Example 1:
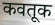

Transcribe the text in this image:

कवतूक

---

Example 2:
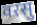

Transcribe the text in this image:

वरसु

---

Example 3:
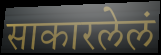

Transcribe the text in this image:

साकारलेलं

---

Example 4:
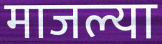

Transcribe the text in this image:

माजल्या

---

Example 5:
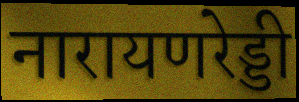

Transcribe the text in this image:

नारायणरेड्डी